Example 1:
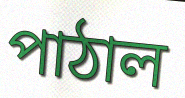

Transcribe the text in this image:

পাঠাল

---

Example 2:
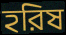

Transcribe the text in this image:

হরিষ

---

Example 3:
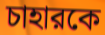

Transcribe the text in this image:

চাহারকে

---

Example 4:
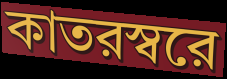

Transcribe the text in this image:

কাতরস্বরে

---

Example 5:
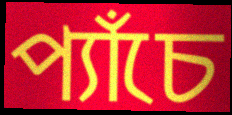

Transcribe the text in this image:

প্যাঁচে